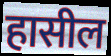
हासील